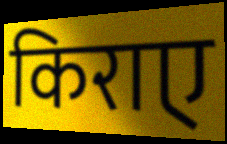
किराए